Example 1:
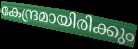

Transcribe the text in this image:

കേന്ദ്രമായിരിക്കും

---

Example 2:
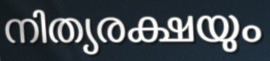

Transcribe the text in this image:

നിത്യരക്ഷയും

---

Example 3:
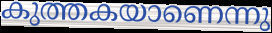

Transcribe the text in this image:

കുത്തകയാണെന്നു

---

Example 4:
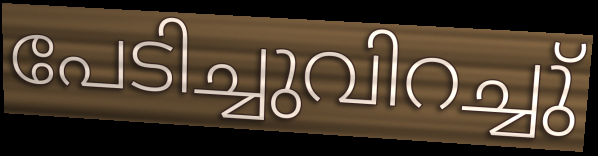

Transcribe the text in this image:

പേടിച്ചുവിറച്ചു്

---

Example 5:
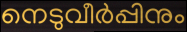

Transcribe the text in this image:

നെടുവീർപ്പിനും